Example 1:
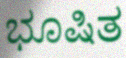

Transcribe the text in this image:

ಭೂಷಿತ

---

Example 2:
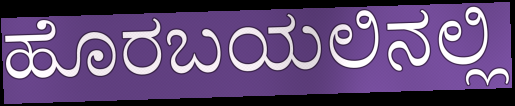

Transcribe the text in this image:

ಹೊರಬಯಲಿನಲ್ಲಿ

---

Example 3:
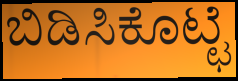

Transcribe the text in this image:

ಬಿಡಿಸಿಕೊಟ್ಟೆ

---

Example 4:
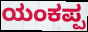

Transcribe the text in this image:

ಯಂಕಪ್ಪ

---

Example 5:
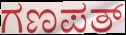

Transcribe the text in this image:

ಗಣಪತ್